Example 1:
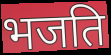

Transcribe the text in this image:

भजति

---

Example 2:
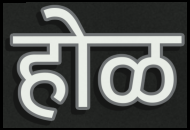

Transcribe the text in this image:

होळ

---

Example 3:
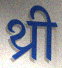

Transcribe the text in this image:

थ्री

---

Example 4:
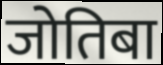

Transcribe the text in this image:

जोतिबा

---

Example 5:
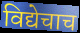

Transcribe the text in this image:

विद्येचाच